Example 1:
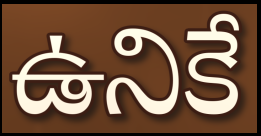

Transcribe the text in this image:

ఉనికే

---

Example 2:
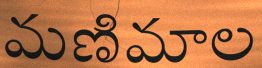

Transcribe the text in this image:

మణిమాల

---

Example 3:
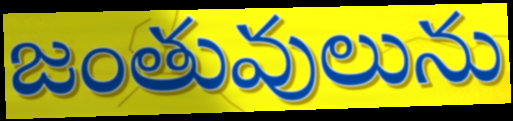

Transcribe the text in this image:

జంతువులును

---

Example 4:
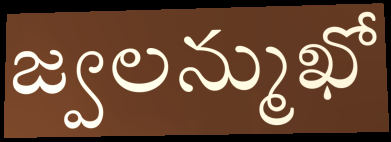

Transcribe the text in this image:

జ్వలన్ముఖో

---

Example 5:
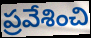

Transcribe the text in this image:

ప్రవేశించి